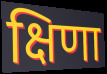
क्षिणा